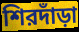
শিরদাঁড়া